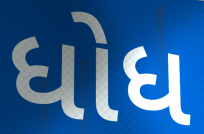
ધોધ